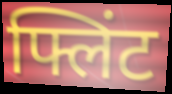
फ्लिंट